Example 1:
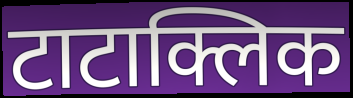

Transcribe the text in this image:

टाटाक्लिक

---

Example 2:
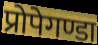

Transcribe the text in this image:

प्रोपेगण्डा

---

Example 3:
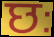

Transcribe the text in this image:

छः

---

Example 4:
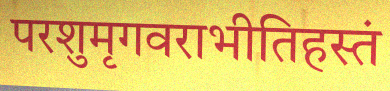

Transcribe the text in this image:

परशुमृगवराभीतिहस्तं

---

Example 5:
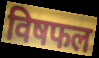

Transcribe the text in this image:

विषफल